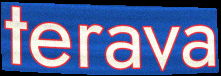
terava